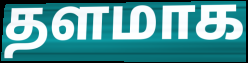
தளமாக